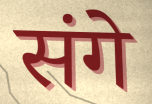
संगे